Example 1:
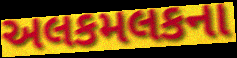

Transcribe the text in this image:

અલકમલકના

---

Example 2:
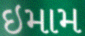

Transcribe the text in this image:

ઇમામ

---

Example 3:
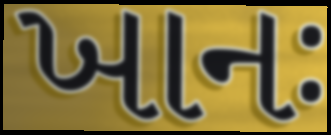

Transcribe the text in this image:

ખાનઃ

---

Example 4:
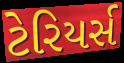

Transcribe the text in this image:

ટેરિયર્સ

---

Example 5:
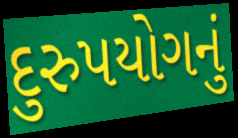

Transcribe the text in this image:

દુરુપયોગનું